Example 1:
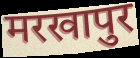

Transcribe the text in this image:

मरखापुर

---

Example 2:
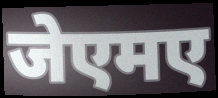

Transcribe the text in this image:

जेएमए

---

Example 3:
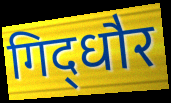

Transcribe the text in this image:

गिद्धौर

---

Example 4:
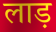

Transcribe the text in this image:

लाड़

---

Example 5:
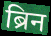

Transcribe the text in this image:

ब्रिन